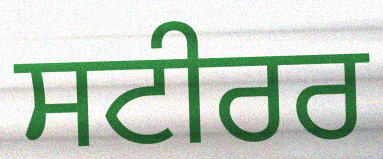
ਸਟੀਰਰ